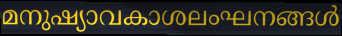
മനുഷ്യാവകാശലംഘനങ്ങൾ